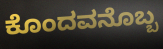
ಕೊಂದವನೊಬ್ಬ